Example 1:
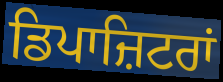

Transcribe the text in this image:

ਡਿਪਾਜ਼ਿਟਰਾਂ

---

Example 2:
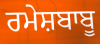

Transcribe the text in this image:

ਰਮੇਸ਼ਬਾਬੂ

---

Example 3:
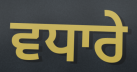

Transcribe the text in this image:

ਵਧਾਰੇ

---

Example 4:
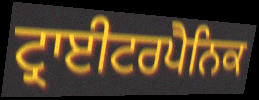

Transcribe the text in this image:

ਟ੍ਰਾਈਟਰਪੈਨਿਕ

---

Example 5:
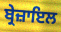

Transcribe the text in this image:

ਬ੍ਰੇਜ਼ਾਇਲ